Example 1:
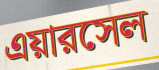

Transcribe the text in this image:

এয়ারসেল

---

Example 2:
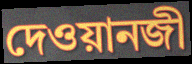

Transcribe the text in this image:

দেওয়ানজী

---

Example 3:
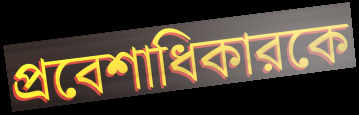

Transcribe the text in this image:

প্রবেশাধিকারকে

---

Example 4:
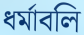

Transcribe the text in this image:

ধর্মাবলি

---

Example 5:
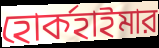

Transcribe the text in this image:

হোর্কহাইমার